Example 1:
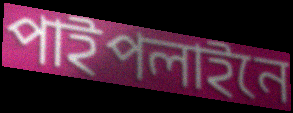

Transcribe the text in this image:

পাইপলাইনে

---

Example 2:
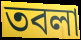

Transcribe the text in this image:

তবলা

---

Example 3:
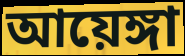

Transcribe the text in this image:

আয়েঙ্গা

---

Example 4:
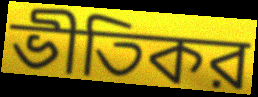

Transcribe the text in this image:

ভীতিকর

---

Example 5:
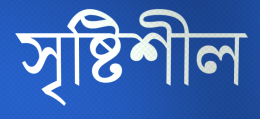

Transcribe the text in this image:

সৃষ্টিশীল